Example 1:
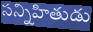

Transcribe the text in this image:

సన్నిహితుడు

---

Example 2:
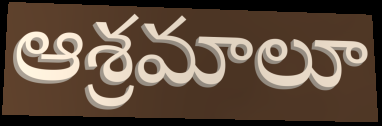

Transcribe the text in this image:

ఆశ్రమాలూ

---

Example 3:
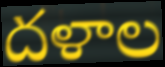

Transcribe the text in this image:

దళాల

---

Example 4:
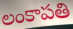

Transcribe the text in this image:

లంకాపతి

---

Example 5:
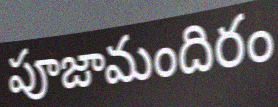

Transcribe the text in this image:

పూజామందిరం